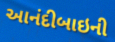
આનંદીબાઇની